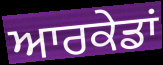
ਆਰਕੇਡਾਂ